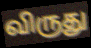
விருது